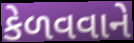
કેળવવાને